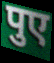
पुए